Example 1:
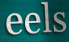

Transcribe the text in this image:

eels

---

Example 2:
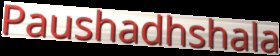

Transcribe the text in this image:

Paushadhshala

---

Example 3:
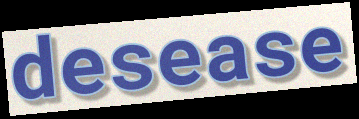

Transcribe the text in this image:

desease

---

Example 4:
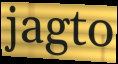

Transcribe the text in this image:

jagto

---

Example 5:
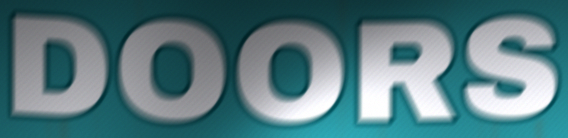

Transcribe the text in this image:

DOORS